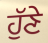
ਹੁੱਣੇ